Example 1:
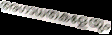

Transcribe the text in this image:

അഗാധതകളേയും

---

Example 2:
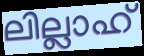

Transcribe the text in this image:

ലില്ലാഹ്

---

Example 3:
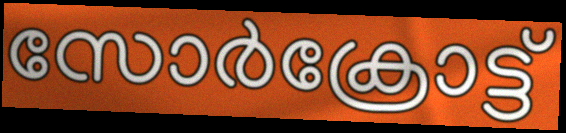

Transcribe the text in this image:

സോർക്രോട്ട്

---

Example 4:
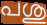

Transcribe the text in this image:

പശു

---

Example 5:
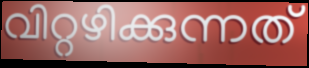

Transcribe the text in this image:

വിറ്റഴിക്കുന്നത്